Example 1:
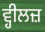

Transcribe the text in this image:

ਵ੍ਹੀਲਜ਼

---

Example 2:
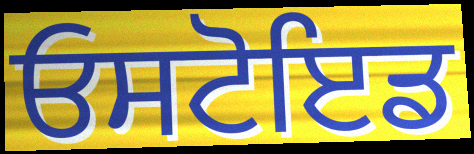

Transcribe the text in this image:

ਓਸਟੋਇਡ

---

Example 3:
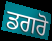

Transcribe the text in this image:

ਡਗਰੋ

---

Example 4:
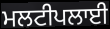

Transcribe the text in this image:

ਮਲਟੀਪਲਾਈ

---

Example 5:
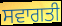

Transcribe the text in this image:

ਸਵਾਗਤੀ